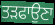
ਤੜਫਾਉਣਾ